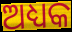
ଅଧ୍ଯକ